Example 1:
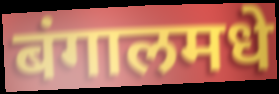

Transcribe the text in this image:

बंगालमधे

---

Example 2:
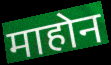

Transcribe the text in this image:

माहोन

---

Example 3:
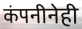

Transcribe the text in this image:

कंपनीनेही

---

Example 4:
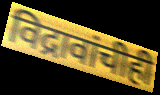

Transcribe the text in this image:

विद्रावांचीही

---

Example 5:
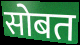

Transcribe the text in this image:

सोबत